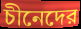
চীনেদের